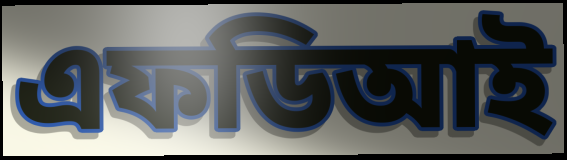
এফডিআই